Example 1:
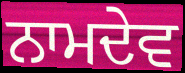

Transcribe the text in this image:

ਨਾਮਦੇਵ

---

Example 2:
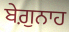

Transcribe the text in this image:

ਬੇਗ਼ੁਨਾਹ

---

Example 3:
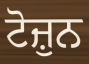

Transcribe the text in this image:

ਟੋਜ਼ੁਨ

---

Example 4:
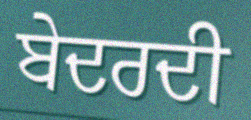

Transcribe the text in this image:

ਬੇਦਰਦੀ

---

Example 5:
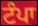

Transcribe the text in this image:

ਟੰਪਾ